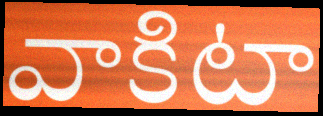
వాకిటా